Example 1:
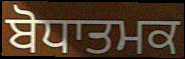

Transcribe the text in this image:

ਬੋਧਾਤਮਕ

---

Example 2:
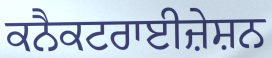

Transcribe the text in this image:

ਕਨੈਕਟਰਾਈਜ਼ੇਸ਼ਨ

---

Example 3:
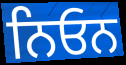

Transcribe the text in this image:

ਨਿਓਨ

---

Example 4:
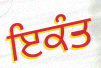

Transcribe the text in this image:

ਇਕੰਤ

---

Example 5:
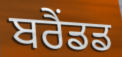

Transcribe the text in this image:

ਬਰੈਂਡਡ